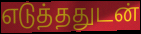
எடுத்ததுடன்